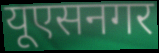
यूएसनगर